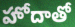
హోదాతో